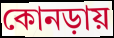
কোনড়ায়